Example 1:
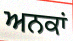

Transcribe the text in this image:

ਅਨਕਾਂ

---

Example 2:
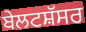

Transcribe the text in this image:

ਬੇਲਟਸ਼ੱਸਰ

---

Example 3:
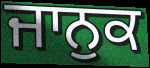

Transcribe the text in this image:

ਜਾਨੁਕ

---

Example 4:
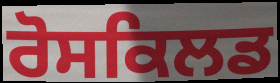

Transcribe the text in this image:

ਰੋਸਕਿਲਡ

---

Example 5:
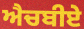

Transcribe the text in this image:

ਐਚਬੀਏ